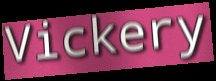
Vickery